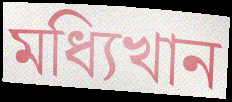
মধ্যিখান